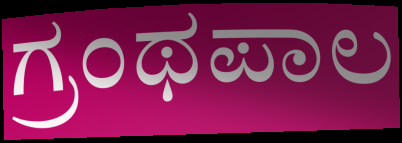
ಗ್ರಂಥಪಾಲ